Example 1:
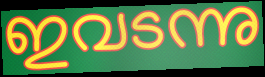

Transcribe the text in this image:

ഇവടന്നു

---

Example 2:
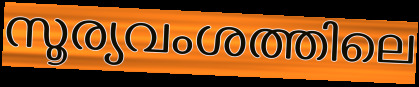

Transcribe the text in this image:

സൂര്യവംശത്തിലെ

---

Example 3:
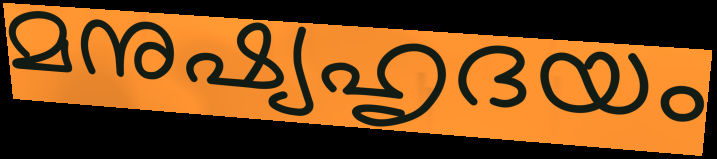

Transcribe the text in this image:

മനുഷ്യഹൃദയം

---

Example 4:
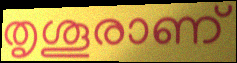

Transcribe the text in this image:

തൃശൂരാണ്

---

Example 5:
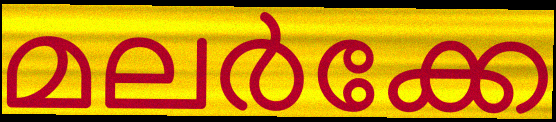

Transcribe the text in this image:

മലർക്കേ